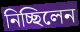
নিচ্ছিলেন